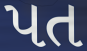
પત